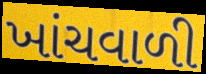
ખાંચવાળી